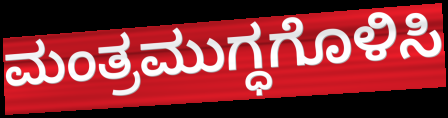
ಮಂತ್ರಮುಗ್ಧಗೊಳಿಸಿ